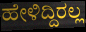
ಹೇಳಿದ್ದಿರಲ್ಲ